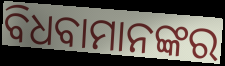
ବିଧବାମାନଙ୍କର